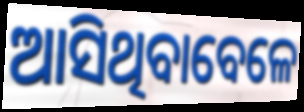
ଆସିଥିବାବେଳେ